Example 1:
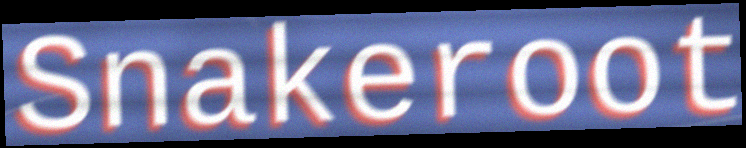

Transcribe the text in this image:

Snakeroot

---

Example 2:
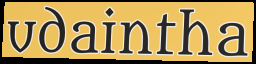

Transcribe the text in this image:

udaintha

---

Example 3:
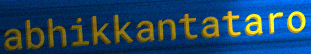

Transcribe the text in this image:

abhikkantataro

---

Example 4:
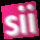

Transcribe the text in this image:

sii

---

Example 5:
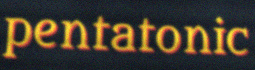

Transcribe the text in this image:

pentatonic